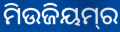
ମିଉଜିୟମ୍‌ର